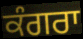
ਕੰਗਰਾ